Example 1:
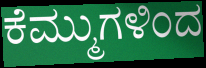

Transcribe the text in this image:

ಕೆಮ್ಮುಗಳಿಂದ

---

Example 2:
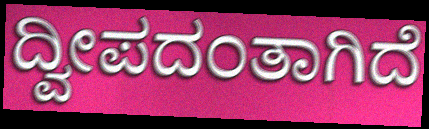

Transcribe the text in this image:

ದ್ವೀಪದಂತಾಗಿದೆ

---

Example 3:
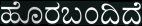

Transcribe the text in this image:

ಹೊರಬಂದಿದೆ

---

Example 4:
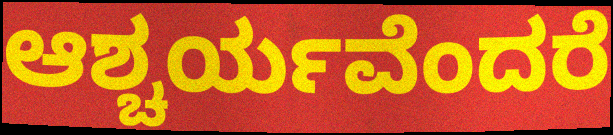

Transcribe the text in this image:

ಆಶ್ಚರ್ಯವೆಂದರೆ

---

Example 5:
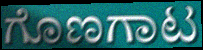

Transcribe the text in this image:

ಗೊಣಗಾಟ